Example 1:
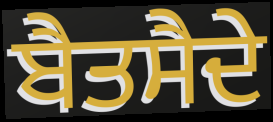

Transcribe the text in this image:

ਬੈਤਸੈਦੇ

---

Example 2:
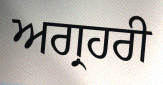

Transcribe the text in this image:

ਅਗ੍ਰਹਰੀ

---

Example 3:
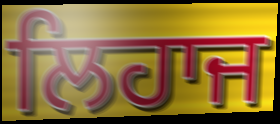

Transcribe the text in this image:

ਲਿਹਾਜ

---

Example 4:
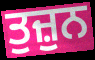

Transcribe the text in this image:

ਤੁਜ਼ੁਨ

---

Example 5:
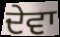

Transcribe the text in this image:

ਦੇਵਾ